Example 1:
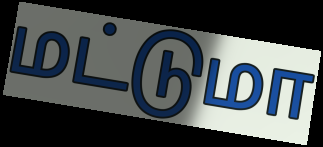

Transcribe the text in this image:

மட்டுமா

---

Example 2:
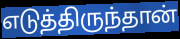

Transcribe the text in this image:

எடுத்திருந்தான்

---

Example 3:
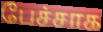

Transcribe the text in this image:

பேச்சாக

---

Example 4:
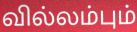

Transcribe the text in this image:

வில்லம்பும்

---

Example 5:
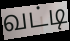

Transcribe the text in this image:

வட்டி